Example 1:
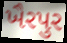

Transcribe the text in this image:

ખૈરપુર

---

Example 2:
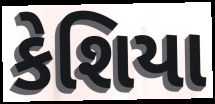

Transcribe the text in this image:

કેશિયા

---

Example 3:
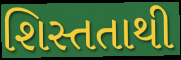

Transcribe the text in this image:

શિસ્તતાથી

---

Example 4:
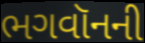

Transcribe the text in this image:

ભગવૉનની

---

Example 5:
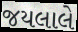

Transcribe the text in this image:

જયલાલે